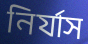
নিৰ্যাস